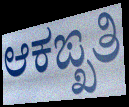
ಆಕಙ್ಖತಿ